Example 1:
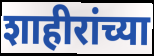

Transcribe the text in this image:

शाहीरांच्या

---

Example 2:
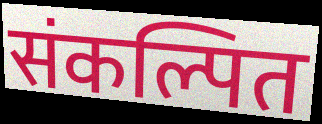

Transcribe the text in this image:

संकल्पित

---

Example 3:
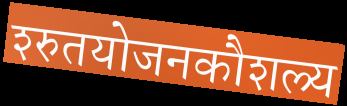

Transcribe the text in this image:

श्रुतयोजनकौशल्य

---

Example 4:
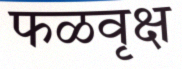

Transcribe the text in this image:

फळवृक्ष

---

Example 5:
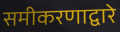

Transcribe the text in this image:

समीकरणाद्वारे